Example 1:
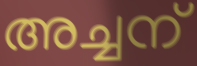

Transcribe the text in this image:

അച്ചന്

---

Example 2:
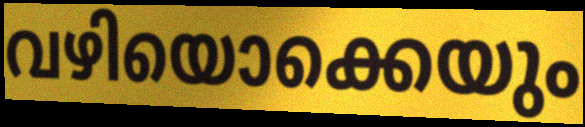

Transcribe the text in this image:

വഴിയൊക്കെയും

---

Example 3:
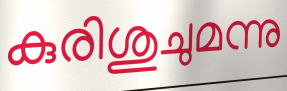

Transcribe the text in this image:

കുരിശുചുമന്നു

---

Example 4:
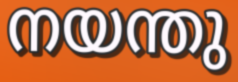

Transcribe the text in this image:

നയന്തു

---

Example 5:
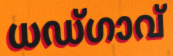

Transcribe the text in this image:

ധഡ്ഗാവ്